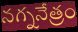
నగ్ననేత్రం